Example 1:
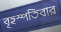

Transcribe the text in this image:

বৃহস্পতিবার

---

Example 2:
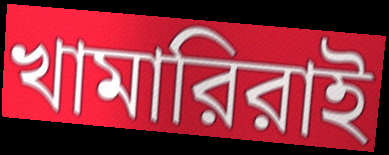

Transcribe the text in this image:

খামারিরাই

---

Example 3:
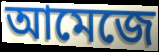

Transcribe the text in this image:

আমেজে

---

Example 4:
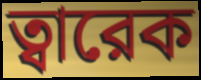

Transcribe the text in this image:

ত্বারেক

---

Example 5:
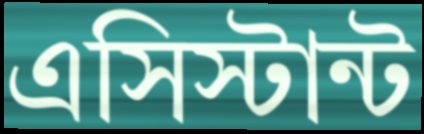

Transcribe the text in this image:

এসিস্টান্ট